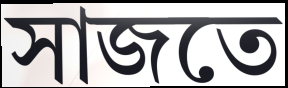
সাজতে